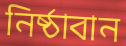
নিষ্ঠাবান